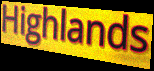
Highlands